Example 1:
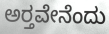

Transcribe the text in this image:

ಅರ‍್ತವೇನೆಂದು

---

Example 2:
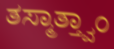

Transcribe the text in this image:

ತಸ್ಮಾತ್ತ್ವಾಂ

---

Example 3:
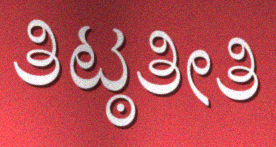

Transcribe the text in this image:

ತಿಟ್ಠತೀತಿ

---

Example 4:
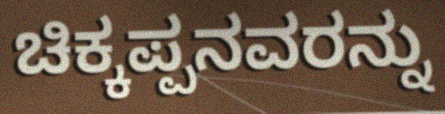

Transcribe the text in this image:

ಚಿಕ್ಕಪ್ಪನವರನ್ನು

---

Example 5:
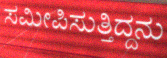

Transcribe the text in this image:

ಸಮೀಪಿಸುತ್ತಿದ್ದನು